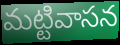
మట్టివాసన